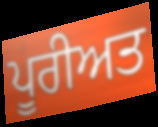
ਪੂਰੀਅਤ